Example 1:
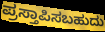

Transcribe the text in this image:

ಪ್ರಸ್ತಾಪಿಸಬಹುದು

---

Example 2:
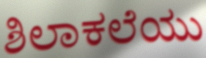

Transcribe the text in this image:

ಶಿಲಾಕಲೆಯು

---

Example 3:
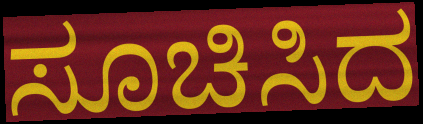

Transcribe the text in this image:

ಸೂಚಿಸಿದ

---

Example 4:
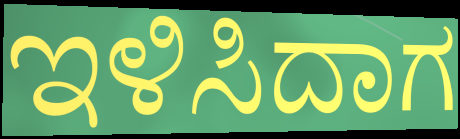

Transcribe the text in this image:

ಇಳಿಸಿದಾಗ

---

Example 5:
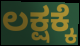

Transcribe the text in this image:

ಲಕ್ಷಕ್ಕೆ